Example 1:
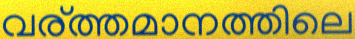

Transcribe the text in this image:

വര്ത്തമാനത്തിലെ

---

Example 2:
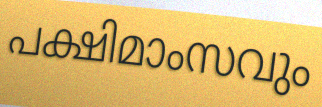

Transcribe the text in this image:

പക്ഷിമാംസവും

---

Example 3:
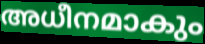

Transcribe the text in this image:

അധീനമാകും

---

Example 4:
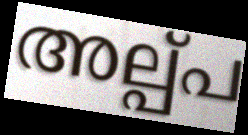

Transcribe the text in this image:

അല്പ്പ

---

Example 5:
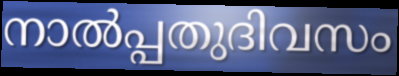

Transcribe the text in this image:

നാൽപ്പതുദിവസം